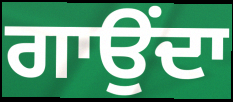
ਗਾਉਂਦਾ